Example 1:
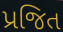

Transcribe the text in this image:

પ્રજિત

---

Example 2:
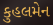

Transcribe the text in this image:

કુહલમેન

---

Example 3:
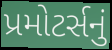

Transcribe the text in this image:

પ્રમોટર્સનું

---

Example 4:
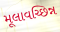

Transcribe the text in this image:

મૂલાવચ્છિન્ન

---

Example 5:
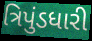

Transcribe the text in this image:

ત્રિપુંડધારી